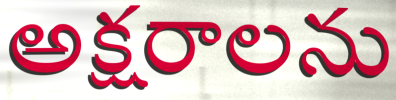
అక్షరాలను